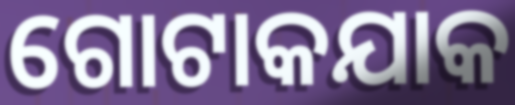
ଗୋଟାକଯାକ